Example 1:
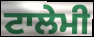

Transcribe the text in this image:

ਟਾਲੇਮੀ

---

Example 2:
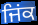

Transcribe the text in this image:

ਜਿਂਕ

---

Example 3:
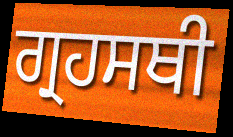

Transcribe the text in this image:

ਗ੍ਰਹਸਥੀ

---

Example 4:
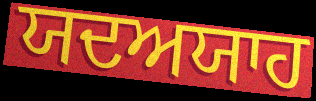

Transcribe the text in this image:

ਯਦਅਯਾਹ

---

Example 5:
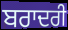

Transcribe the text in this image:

ਬਰਾਦਰੀ